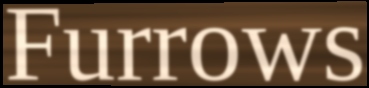
Furrows